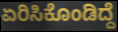
ಏರಿಸಿಕೊಂಡಿದ್ದೆ